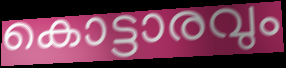
കൊട്ടാരവും